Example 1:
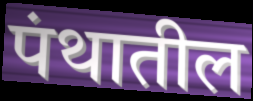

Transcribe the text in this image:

पंथातील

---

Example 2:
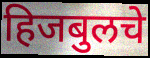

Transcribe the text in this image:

हिजबुलचे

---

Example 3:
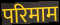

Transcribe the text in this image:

परिमाम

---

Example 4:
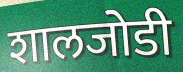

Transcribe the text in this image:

शालजोडी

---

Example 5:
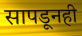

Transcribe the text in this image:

सापडूनही